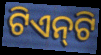
ଟିଏନ୍‌ଟି